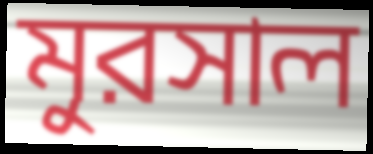
মুরসাল